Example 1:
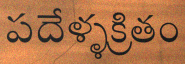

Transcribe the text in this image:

పదేళ్ళక్రితం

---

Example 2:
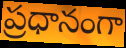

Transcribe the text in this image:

ప్రధానంగా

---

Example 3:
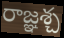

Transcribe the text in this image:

రాజ్ఞశ్చ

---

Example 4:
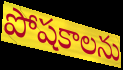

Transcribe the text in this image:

పోషకాలను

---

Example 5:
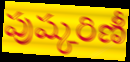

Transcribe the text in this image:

పుష్కరిణీ